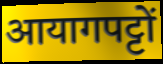
आयागपट्टों